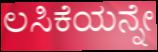
ಲಸಿಕೆಯನ್ನೇ